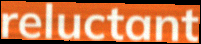
reluctant